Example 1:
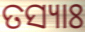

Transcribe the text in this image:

ତସ୍ୟାଃ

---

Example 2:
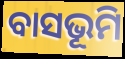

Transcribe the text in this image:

ବାସଭୂମି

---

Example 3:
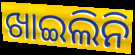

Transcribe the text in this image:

ଖାଇଲିନି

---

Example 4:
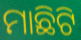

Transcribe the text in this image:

ମାଛିଟି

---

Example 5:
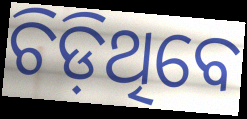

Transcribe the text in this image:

ଚିଡ଼ିଥିବେ